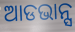
ଆଡଭାନ୍ସ